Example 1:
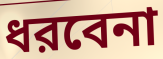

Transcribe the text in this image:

ধরবেনা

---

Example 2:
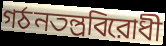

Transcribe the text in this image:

গঠনতন্ত্রবিরোধী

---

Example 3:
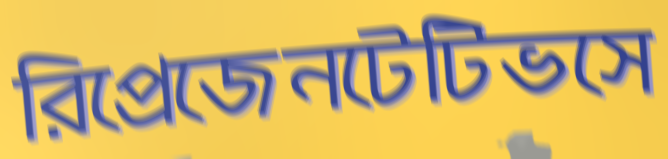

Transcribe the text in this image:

রিপ্রেজেনটেটিভসে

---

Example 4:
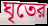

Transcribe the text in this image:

ঘৃতের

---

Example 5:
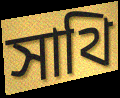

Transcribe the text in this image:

সাথি